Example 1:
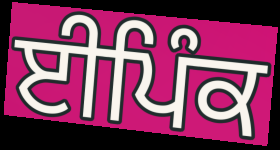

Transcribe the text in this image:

ਈਪਿੰਕ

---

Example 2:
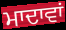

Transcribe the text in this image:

ਮਾਦਾਵਾਂ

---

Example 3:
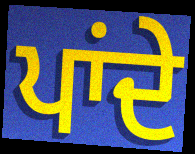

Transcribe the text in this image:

ਪਾਂਦੇ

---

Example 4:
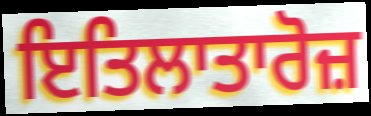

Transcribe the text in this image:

ਇਤਿਲਾਤਾਰੋਜ਼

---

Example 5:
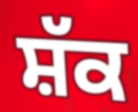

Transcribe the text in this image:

ਸ਼ੱਕ